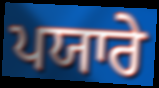
ਪਯਾਰੇ